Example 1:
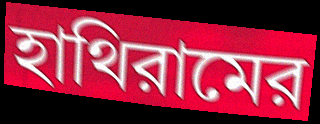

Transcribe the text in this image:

হাথিরামের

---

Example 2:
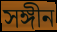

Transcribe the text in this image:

সঙ্গীন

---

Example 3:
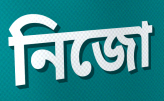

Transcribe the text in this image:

নিজো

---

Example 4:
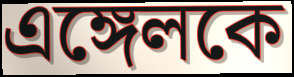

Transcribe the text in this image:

এঙ্গেলকে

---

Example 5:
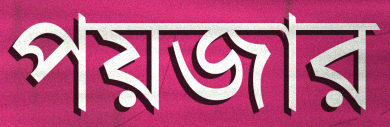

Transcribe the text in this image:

পয়জার